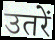
उतरें